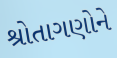
શ્રોતાગણોને